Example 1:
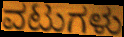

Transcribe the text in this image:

ವಟುಗಳು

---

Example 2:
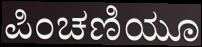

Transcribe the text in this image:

ಪಿಂಚಣಿಯೂ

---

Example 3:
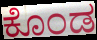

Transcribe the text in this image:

ಕೊಂಡ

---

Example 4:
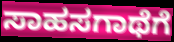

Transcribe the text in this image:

ಸಾಹಸಗಾಥೆಗೆ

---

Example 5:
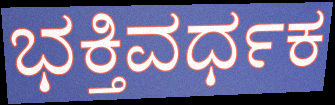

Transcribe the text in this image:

ಭಕ್ತಿವರ್ಧಕ